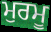
ਮੁਰਮੂ